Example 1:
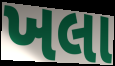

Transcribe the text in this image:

ખલા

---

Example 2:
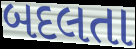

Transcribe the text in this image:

બદલતા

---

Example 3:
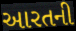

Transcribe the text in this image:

આરતની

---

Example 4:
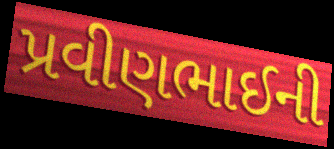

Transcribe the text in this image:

પ્રવીણભાઈની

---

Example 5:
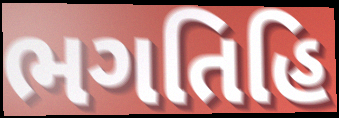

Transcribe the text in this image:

ભગતિહિ